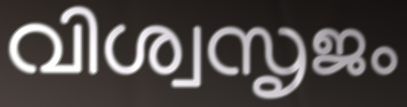
വിശ്വസൃജം